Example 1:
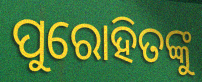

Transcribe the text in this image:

ପୁରୋହିତଙ୍କୁ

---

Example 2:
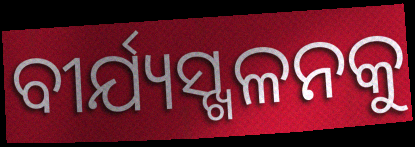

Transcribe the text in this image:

ବୀର୍ଯ୍ୟସ୍ଖଳନକୁ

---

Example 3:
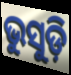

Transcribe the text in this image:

ଭୁସୁଡ଼ି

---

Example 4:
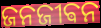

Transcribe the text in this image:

ଜନଜୀଵନ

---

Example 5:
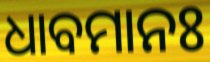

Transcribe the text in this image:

ଧାବମାନଃ